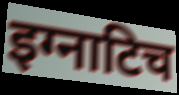
इग्नाटिच